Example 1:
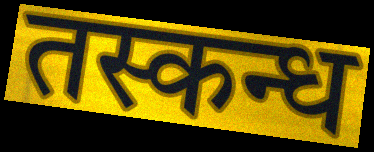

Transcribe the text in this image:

तस्कन्ध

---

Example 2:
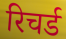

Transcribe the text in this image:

रिचर्ड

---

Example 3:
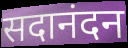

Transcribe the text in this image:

सदानंदन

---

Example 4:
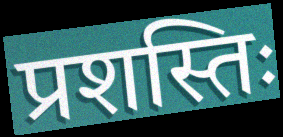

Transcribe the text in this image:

प्रशस्तिः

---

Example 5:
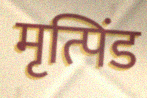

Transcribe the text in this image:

मृत्पिंड